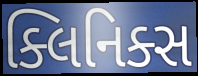
ક્લિનિક્સ